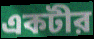
একটীর